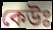
কেউঃ